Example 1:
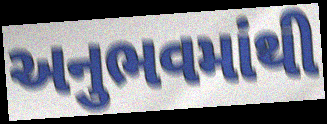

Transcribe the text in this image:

અનુભવમાંથી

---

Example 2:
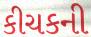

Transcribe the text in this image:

કીચકની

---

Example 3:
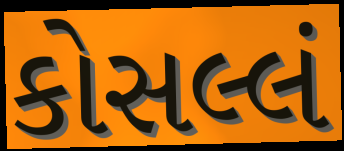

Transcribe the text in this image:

કોસલ્લં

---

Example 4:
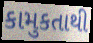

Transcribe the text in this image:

કામુકતાથી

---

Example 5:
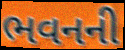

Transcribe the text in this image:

ભવનની